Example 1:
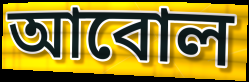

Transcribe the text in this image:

আবোল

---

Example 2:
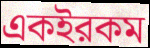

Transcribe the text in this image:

একইরকম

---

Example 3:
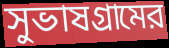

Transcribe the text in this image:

সুভাষগ্রামের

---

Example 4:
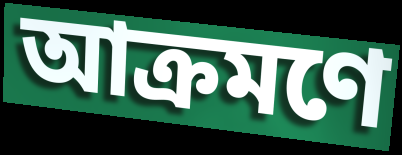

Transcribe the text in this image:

আক্রমণে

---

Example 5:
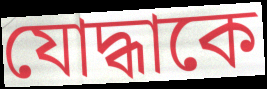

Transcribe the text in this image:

যোদ্ধাকে